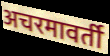
अचरमावर्ती